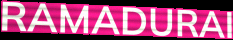
RAMADURAI